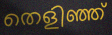
തെളിഞ്ഞ്